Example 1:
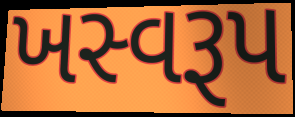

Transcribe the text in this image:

ખસ્વરૂપ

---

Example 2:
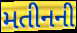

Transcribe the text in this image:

મતીનની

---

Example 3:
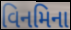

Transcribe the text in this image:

વિનમિના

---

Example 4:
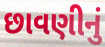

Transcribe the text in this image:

છાવણીનું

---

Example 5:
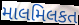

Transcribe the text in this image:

માલમિલકત